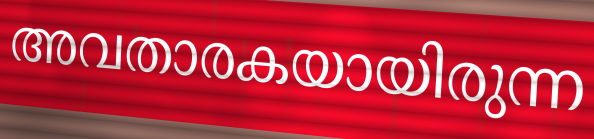
അവതാരകയായിരുന്ന